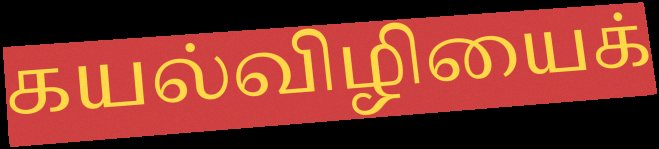
கயல்விழியைக்